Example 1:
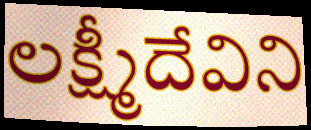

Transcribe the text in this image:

లక్ష్మీదేవిని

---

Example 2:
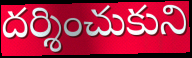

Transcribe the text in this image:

దర్శించుకుని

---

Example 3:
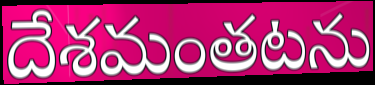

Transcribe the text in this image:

దేశమంతటను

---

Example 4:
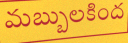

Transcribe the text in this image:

మబ్బులకింద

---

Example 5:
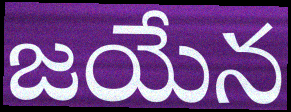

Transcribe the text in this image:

జయేన